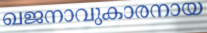
ഖജനാവുകാരനായ